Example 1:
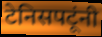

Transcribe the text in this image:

टेनिसपटूंनी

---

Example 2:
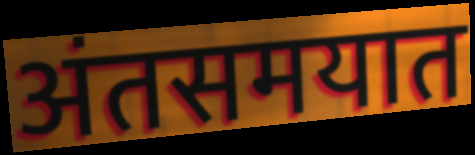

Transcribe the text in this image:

अंतसमयात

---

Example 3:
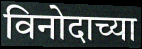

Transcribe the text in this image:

विनोदाच्या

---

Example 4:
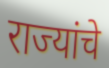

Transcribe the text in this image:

राज्यांचे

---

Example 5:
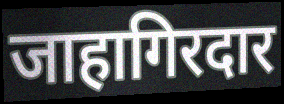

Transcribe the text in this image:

जाहागिरदार